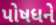
પોષધને